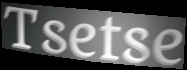
Tsetse